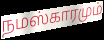
நமஸ்காரமும்